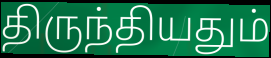
திருந்தியதும்